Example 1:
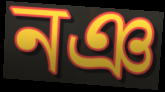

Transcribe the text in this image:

নঞ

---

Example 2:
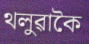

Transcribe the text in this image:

থলুৱাকৈ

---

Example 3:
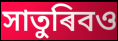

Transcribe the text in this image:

সাতুৰিবও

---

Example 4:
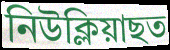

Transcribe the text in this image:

নিউক্লিয়াছত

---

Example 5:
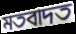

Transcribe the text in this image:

মতবাদত